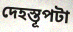
দেহস্তূপটা